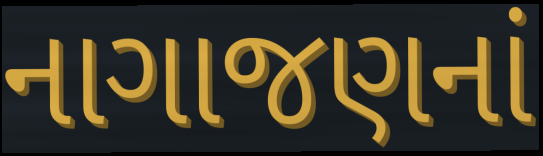
નાગાજણનાં